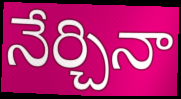
నేర్చినా